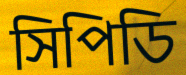
সিপিডি